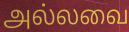
அல்லவை